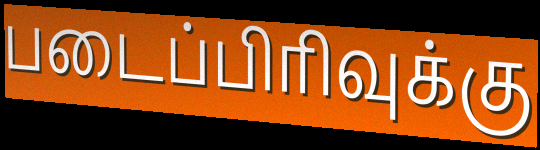
படைப்பிரிவுக்கு